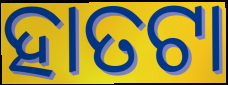
ହାତଟା